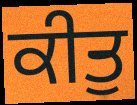
ਕੀਤੁ